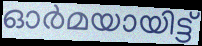
ഓർമയായിട്ട്